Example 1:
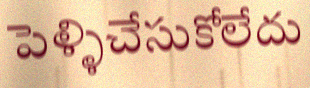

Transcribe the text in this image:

పెళ్ళిచేసుకోలేదు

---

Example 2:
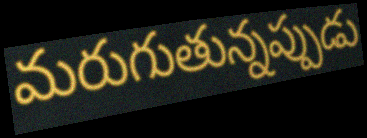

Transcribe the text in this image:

మరుగుతున్నప్పుడు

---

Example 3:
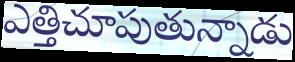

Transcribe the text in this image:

ఎత్తిచూపుతున్నాడు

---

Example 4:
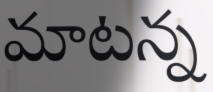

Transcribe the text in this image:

మాటన్న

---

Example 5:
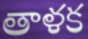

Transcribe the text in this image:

తాళక